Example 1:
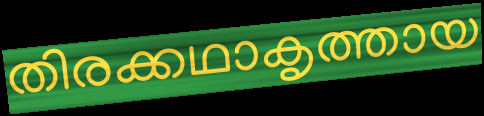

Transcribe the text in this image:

തിരക്കഥാകൃത്തായ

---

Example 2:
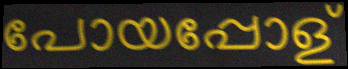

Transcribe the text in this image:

പോയപ്പോള്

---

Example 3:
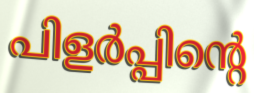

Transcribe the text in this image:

പിളർപ്പിന്റെ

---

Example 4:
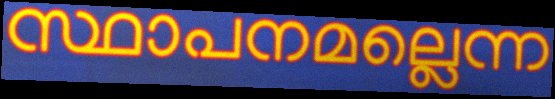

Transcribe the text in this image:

സ്ഥാപനമല്ലെന്ന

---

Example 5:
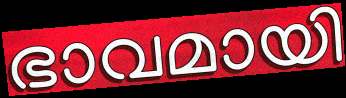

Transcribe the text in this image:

ഭാവമായി